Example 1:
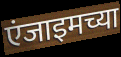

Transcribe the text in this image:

एंजाइमच्या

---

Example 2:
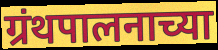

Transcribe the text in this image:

ग्रंथपालनाच्या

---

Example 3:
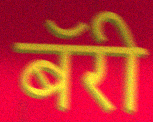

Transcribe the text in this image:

बॅरी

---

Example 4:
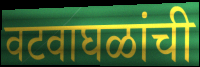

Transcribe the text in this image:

वटवाघळांची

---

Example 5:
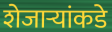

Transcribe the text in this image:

शेजाऱ्यांकडे